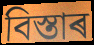
বিস্তাৰ